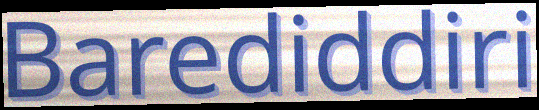
Barediddiri